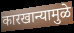
कारखान्यामुळे